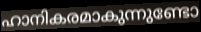
ഹാനികരമാകുന്നുണ്ടോ